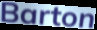
Barton